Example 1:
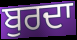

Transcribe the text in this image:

ਬੁਰਦਾ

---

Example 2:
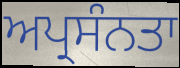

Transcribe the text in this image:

ਅਪ੍ਰਸੰਨਤਾ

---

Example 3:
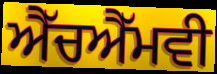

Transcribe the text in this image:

ਐੱਚਐੱਮਵੀ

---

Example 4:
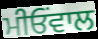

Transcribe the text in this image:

ਮੀਓਂਵਾਲ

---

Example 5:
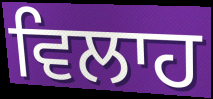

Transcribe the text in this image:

ਵਿਲਾਹ